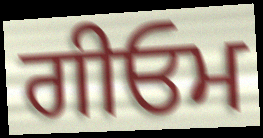
ਗੀਓਮ